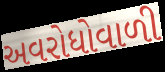
અવરોધોવાળી